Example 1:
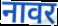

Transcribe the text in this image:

नावर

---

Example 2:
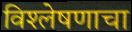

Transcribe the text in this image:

विश्‍लेषणाचा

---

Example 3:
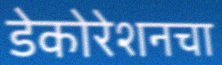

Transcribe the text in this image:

डेकोरेशनचा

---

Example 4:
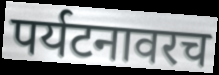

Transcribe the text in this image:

पर्यटनावरच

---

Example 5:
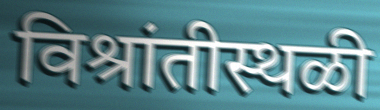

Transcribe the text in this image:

विश्रांतीस्थळी